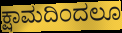
ಕ್ಷಾಮದಿಂದಲೂ